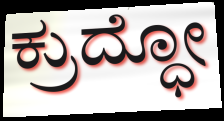
ಕ್ರುದ್ಧೋ